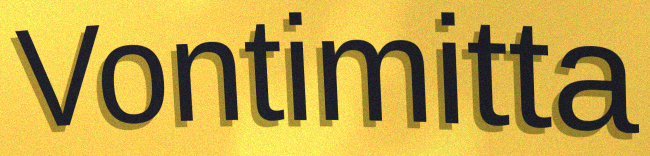
Vontimitta